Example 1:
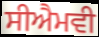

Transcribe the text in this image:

ਸੀਐਮਵੀ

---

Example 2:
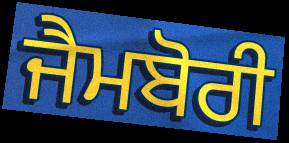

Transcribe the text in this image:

ਜੈਮਬੋਰੀ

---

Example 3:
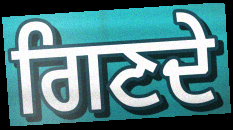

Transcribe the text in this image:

ਗਿਣਦੇ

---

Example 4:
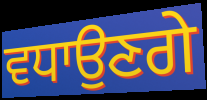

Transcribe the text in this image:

ਵਧਾਉਣਗੇ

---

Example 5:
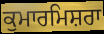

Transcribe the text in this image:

ਕੁਮਾਰਮਿਸ਼ਰਾ